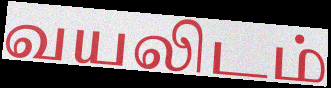
வயலிடம்